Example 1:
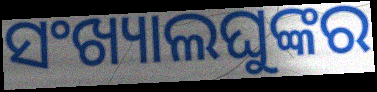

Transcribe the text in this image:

ସଂଖ୍ୟାଲଘୁଙ୍କର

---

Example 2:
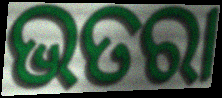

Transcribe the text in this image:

ଭତରା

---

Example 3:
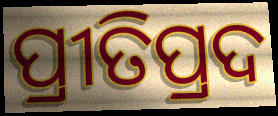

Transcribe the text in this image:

ପ୍ରୀତିପ୍ରଦ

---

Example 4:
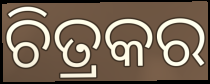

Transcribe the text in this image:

ଚିତ୍ରକର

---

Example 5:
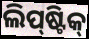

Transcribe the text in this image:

ଲିପ୍‌ଷ୍ଟିକ୍